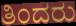
ತಿಂದರು